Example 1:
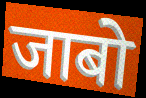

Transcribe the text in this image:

जाबो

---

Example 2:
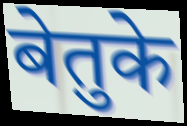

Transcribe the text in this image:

बेतुके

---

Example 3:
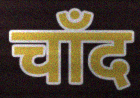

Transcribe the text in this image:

चाँद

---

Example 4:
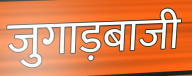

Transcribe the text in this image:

जुगाड़बाजी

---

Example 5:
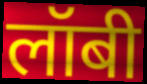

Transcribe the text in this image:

लॉबी